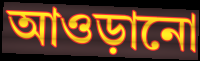
আওড়ানো